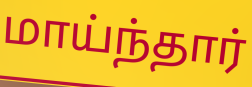
மாய்ந்தார்